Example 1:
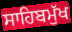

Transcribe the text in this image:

ਸਾਹਿਬਮੁੱਖ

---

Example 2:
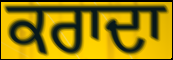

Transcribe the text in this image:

ਕਰਾਦਾ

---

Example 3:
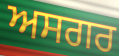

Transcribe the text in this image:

ਅਸਗਰ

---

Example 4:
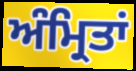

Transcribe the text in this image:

ਅੰਮ੍ਰਿਤਾਂ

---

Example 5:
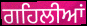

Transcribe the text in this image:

ਗਹਿਲੀਆਂ